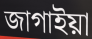
জাগাইয়া